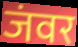
जंवर